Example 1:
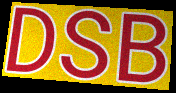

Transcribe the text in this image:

DSB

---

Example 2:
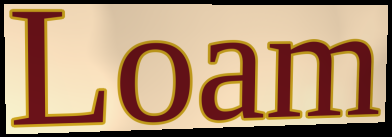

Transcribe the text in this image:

Loam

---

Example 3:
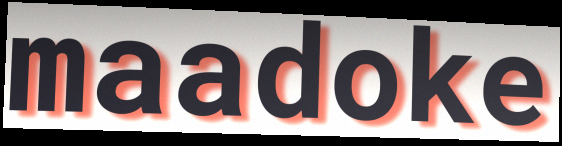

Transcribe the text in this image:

maadoke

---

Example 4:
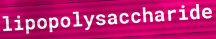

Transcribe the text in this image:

lipopolysaccharide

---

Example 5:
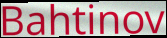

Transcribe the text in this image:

Bahtinov